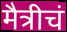
मैत्रीचं